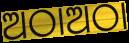
ଅଠାଅଠା